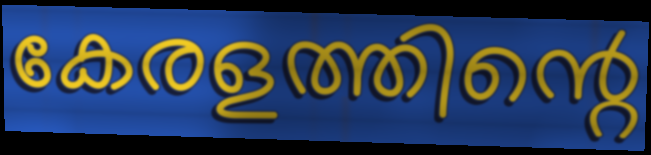
കേരളത്തിന്റെ